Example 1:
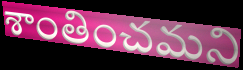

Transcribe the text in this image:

శాంతించమని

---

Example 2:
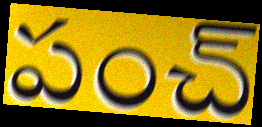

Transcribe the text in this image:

పంచ్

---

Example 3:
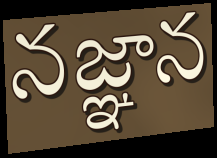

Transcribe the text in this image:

నజ్ఞాన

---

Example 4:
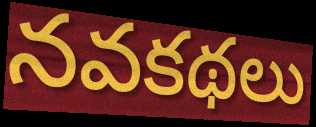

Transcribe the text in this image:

నవకథలు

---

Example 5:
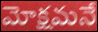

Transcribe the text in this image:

మోక్షమనే